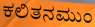
ಕಲಿತನಮುಂ